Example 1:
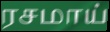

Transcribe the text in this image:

ரசமாய்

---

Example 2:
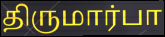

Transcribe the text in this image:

திருமார்பா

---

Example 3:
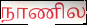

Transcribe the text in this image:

நாணில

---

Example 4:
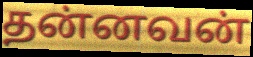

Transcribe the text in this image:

தன்னவன்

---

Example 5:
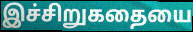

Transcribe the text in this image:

இச்சிறுகதையை